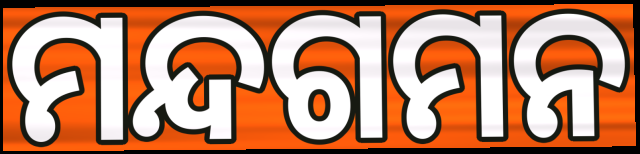
ମନ୍ଦଗମନ